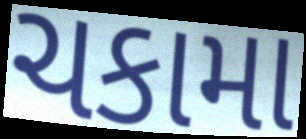
ચકામા